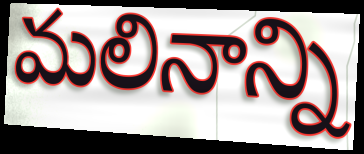
మలినాన్ని